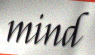
mind